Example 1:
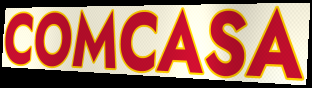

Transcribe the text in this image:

COMCASA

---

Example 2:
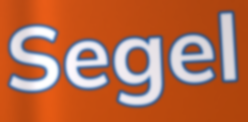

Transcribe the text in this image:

Segel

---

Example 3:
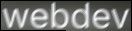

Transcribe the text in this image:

webdev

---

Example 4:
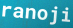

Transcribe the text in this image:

ranoji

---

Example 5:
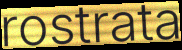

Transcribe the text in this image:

rostrata